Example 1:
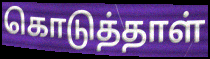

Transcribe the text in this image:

கொடுத்தாள்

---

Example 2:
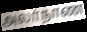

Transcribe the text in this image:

அலர்நாண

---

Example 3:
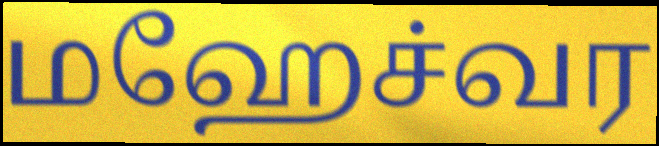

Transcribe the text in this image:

மஹேச்வர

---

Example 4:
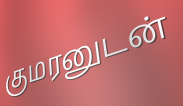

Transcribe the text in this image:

குமரனுடன்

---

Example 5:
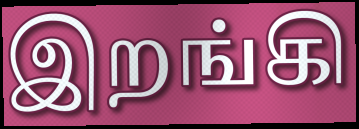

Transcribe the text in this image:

இறங்கி